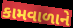
કામવાળાને